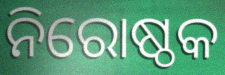
ନିରୋଷ୍ଠକ